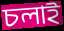
চলাই